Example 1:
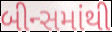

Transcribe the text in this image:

બીન્સમાંથી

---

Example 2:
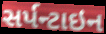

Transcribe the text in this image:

સર્પન્ટાઇન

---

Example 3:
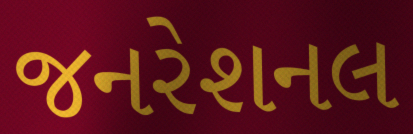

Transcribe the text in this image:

જનરેશનલ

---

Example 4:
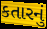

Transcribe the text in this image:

કતારનું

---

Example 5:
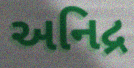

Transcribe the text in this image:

અનિદ્ર